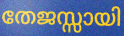
തേജസ്സായി